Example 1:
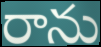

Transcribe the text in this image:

రాను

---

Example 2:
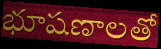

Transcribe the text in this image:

భూషణాలతో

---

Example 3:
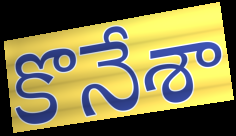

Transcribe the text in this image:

కొనేశా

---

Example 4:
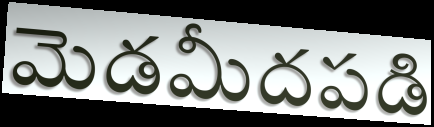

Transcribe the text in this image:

మెడమీదపడి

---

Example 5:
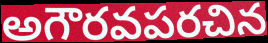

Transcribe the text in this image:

అగౌరవపరచిన